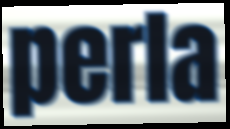
perla